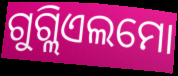
ଗୁଗ୍ଲିଏଲମୋ